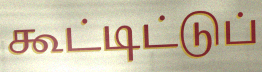
கூட்டிட்டுப்